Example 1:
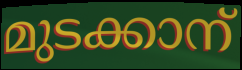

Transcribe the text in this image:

മുടക്കാന്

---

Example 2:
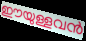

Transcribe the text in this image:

ഈയുള്ളവൻ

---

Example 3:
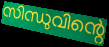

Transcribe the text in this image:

സിന്ധുവിന്റെ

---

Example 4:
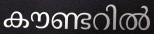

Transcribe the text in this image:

കൗണ്ടറിൽ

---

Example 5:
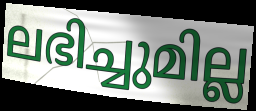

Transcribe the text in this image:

ലഭിച്ചുമില്ല